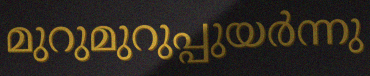
മുറുമുറുപ്പുയർന്നു